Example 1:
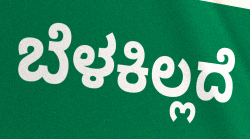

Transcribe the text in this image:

ಬೆಳಕಿಲ್ಲದೆ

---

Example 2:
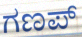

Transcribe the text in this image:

ಗಣಪ್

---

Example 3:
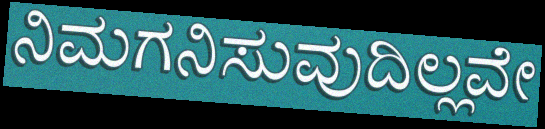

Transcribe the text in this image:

ನಿಮಗನಿಸುವುದಿಲ್ಲವೇ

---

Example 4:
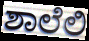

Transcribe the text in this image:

ಶಾಲೆಲಿ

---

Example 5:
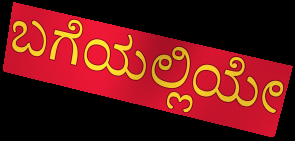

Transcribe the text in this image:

ಬಗೆಯಲ್ಲಿಯೇ